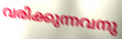
വരിക്കുന്നവനു